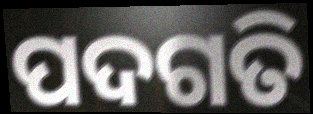
ପଦଗତି